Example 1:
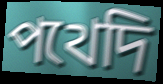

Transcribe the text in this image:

পথেদি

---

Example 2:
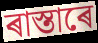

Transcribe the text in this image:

ৰাস্তাৰে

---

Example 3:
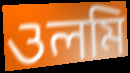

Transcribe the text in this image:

ওলমি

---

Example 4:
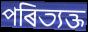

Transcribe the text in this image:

পৰিত্যক্ত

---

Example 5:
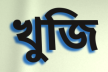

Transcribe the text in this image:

খুজি